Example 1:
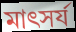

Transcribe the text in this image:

মাৎসর্য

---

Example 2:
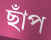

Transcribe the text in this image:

ছাঁপ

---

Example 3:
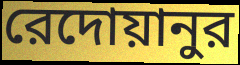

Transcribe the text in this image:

রেদোয়ানুর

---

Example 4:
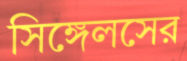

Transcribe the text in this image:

সিঙ্গেলসের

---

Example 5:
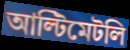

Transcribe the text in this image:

আল্টিমেটলি